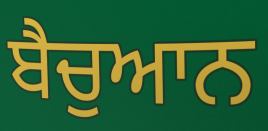
ਬੈਚੁਆਨ